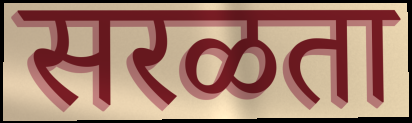
सरळता